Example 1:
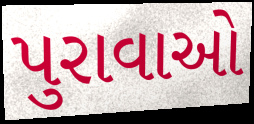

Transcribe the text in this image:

પુરાવાઓ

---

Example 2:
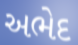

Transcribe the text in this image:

અભેદ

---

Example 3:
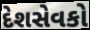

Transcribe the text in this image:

દેશસેવકો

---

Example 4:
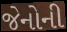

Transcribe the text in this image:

જેનોની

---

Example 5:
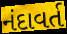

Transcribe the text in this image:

નંદાવર્ત